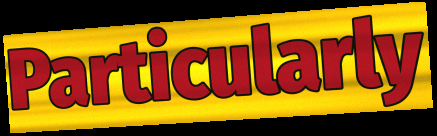
Particularly